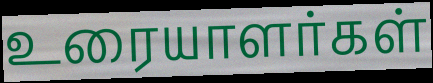
உரையாளர்கள்